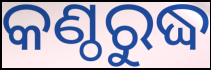
କଣ୍ଠରୁଦ୍ଧ